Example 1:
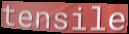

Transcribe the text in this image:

tensile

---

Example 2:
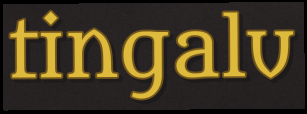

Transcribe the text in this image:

tingalu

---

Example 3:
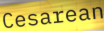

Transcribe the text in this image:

Cesarean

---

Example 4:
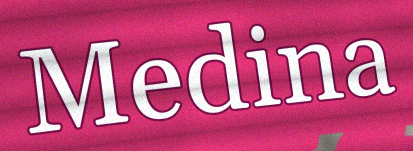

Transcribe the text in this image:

Medina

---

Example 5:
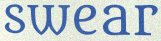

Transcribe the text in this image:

swear